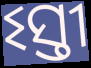
ଽସ୍ତୀ